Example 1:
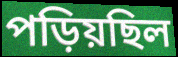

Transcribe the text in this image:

পড়িয়ছিল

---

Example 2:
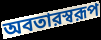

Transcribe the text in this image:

অবতারস্বরূপ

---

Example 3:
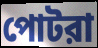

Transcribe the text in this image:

পোটরা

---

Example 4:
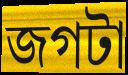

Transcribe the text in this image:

জগটা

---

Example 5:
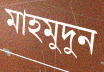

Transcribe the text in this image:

মাহমুদুন